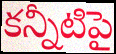
కన్నీటిపై